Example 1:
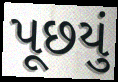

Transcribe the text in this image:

પૂછયું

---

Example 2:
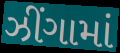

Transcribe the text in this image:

ઝીંગામાં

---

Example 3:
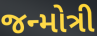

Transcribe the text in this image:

જન્મોત્રી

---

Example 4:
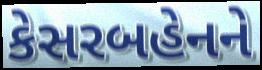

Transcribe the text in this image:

કેસરબહેનને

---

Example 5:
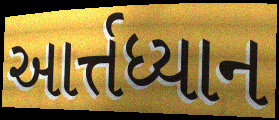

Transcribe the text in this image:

આર્ત્તધ્યાન